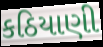
કઠિયાણી